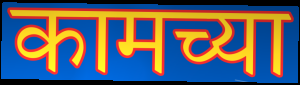
कामच्या